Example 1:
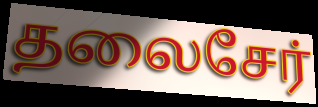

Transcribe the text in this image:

தலைசேர்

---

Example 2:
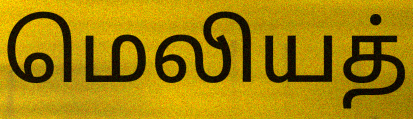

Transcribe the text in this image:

மெலியத்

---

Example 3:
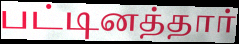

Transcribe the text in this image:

பட்டினத்தார்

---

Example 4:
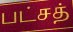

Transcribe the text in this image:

பட்சத்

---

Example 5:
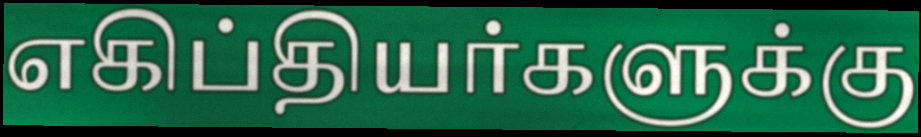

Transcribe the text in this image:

எகிப்தியர்களுக்கு